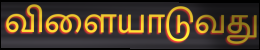
விளையாடுவது